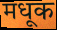
मधूक